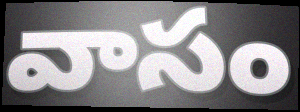
వాసం